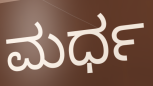
ಮರ್ಧ